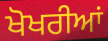
ਖੋਖਰੀਆਂ